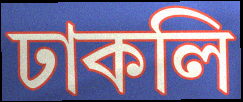
ঢাকলি